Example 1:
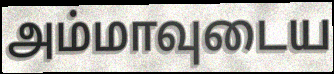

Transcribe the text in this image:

அம்மாவுடைய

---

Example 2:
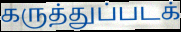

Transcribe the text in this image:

கருத்துப்படக்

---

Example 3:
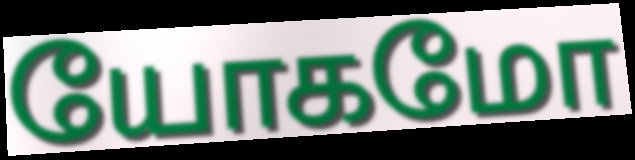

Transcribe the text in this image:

யோகமோ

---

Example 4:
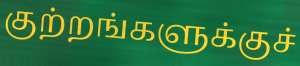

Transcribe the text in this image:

குற்றங்களுக்குச்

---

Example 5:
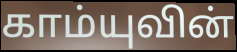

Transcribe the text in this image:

காம்யுவின்